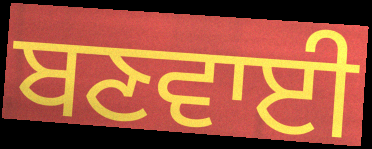
ਬਣਵਾਈ